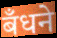
बँधने